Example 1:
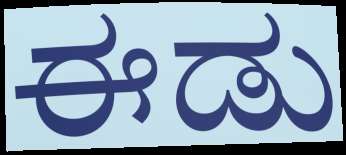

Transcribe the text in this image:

ಈಡು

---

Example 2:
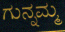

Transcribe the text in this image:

ಗುನ್ನಮ್ಮ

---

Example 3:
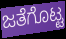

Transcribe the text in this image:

ಜತೆಗೊಟ್ಟ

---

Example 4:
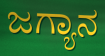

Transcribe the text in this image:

ಜಗ್ಯಾನ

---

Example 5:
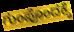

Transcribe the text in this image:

ಗುಂಪೊಂದಕ್ಕೆ